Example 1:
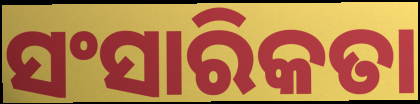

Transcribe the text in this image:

ସଂସାରିକତା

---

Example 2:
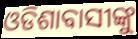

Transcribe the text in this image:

ଓଡିଶାବାସୀଙ୍କୁ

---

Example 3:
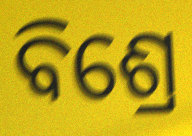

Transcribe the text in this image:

ବିଶ୍ରେ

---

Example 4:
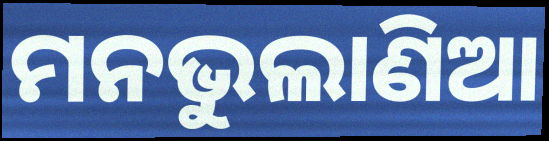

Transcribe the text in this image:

ମନଭୁଲାଣିଆ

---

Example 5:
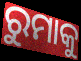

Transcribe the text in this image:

ରୁମାକୁ